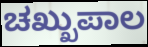
ಚಖ್ಖುಪಾಲ